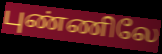
புண்ணிலே